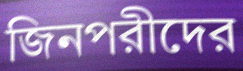
জিনপরীদের